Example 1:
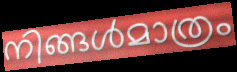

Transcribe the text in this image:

നിങ്ങൾമാത്രം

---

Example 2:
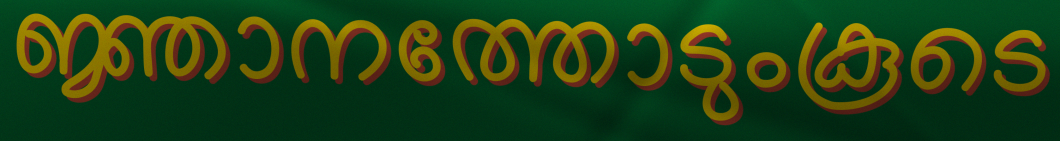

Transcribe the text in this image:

ജ്ഞാനത്തോടുംകൂടെ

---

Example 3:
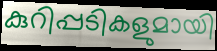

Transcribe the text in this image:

കുറിപ്പടികളുമായി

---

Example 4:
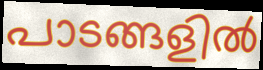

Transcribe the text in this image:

പാടങ്ങളിൽ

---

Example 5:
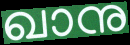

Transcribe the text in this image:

ഖാനു